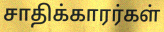
சாதிக்காரர்கள்